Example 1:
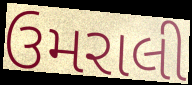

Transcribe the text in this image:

ઉમરાલી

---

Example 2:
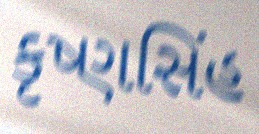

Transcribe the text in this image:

કૃષ્ણસિંહ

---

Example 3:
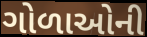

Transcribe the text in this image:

ગોળાઓની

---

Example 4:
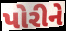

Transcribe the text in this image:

પોરીને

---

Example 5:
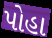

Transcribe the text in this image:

પોહા